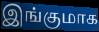
இங்குமாக